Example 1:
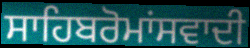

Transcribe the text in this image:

ਸਾਹਿਬਰੋਮਾਂਸਵਾਦੀ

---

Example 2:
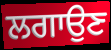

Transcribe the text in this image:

ਲਗਾਉਣ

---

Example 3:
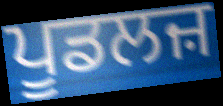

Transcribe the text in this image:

ਪੂਡਲਜ਼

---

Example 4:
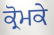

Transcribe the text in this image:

ਕ੍ਰੋਮਕੇ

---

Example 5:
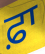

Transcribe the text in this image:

ਫ਼ਾ